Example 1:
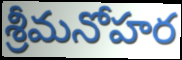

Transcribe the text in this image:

శ్రీమనోహర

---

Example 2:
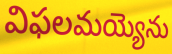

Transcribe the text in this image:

విఫలమయ్యెను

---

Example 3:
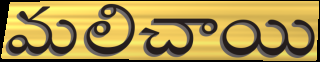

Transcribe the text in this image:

మలిచాయి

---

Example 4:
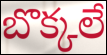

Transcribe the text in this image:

బొక్కలే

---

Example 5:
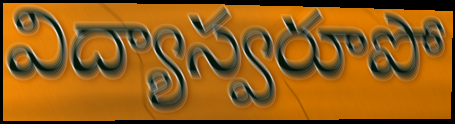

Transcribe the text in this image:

విద్యాస్వరూపో